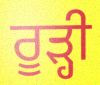
ਰੂੜ੍ਹੀ